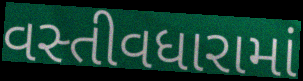
વસ્તીવધારામાં